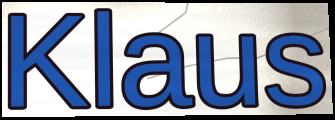
Klaus